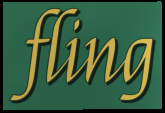
fling